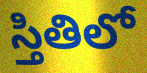
స్తితిలో